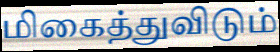
மிகைத்துவிடும்